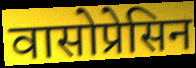
वासोप्रेसिन